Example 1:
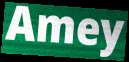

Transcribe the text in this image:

Amey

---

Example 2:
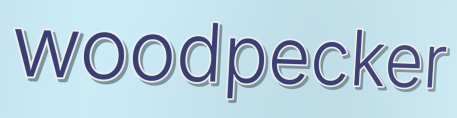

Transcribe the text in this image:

woodpecker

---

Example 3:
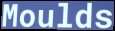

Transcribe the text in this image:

Moulds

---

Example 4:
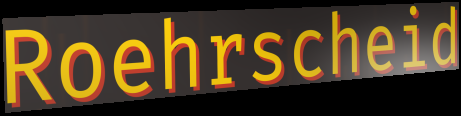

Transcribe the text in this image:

Roehrscheid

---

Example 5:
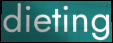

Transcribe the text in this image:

dieting